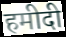
हमीदी